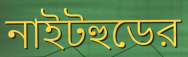
নাইটহুডের